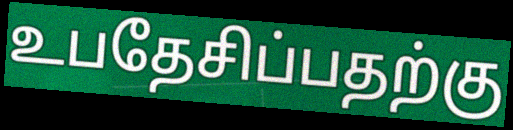
உபதேசிப்பதற்கு